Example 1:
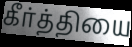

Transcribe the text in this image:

கீர்த்தியை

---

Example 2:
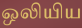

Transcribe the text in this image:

ஒலியிய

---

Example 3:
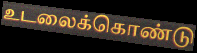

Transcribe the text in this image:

உடலைக்கொண்டு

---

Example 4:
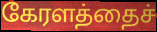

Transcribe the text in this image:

கேரளத்தைச்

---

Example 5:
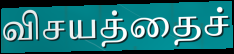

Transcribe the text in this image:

விசயத்தைச்